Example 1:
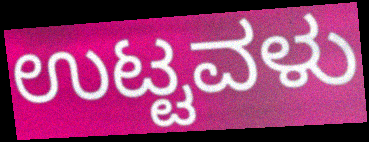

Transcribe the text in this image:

ಉಟ್ಟವಳು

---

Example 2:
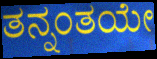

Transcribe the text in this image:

ತನ್ನಂತಯೇ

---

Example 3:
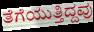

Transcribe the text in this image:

ತೆಗೆಯುತ್ತಿದ್ದವು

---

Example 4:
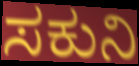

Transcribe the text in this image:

ಸಕುನಿ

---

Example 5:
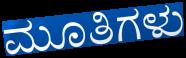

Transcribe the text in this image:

ಮೂತಿಗಳು